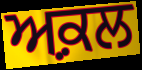
ਅ਼ਕ਼ਲ